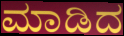
ಮಾಡಿದ